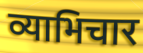
व्याभिचार